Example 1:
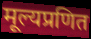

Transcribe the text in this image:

मूल्यप्रणित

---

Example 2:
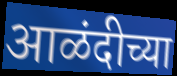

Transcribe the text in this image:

आळंदीच्या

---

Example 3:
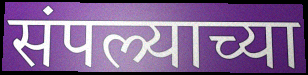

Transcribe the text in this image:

संपल्याच्या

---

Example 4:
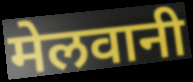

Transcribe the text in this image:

मेलवानी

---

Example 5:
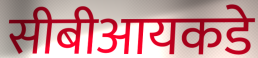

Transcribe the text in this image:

सीबीआयकडे